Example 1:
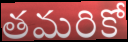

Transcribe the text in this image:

తమరికో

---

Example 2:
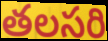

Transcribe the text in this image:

తలసరి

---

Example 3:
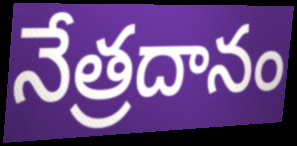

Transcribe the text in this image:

నేత్రదానం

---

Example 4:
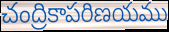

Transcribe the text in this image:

చంద్రికాపరిణయము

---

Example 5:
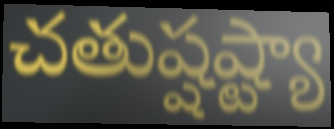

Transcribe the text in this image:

చతుష్షష్ట్యా